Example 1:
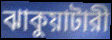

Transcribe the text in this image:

ঝাকুয়াটারী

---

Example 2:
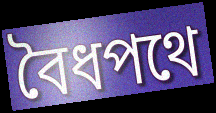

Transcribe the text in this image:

বৈধপথে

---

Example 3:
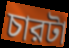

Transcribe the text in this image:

চারটা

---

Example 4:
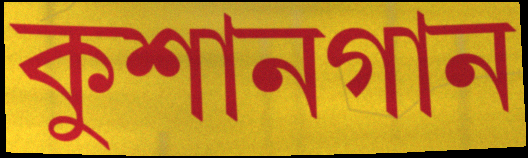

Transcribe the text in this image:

কুশানগান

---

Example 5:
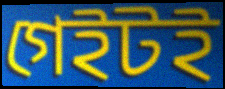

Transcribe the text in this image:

গেইটই